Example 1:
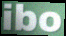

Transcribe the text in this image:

ibo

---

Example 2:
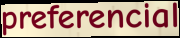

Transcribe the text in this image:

preferencial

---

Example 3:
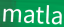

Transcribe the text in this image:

matla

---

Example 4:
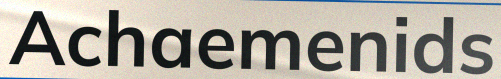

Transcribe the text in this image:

Achaemenids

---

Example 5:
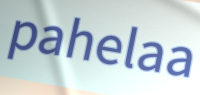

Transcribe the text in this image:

pahelaa